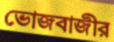
ভোজবাজীর